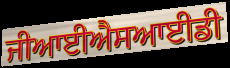
ਜੀਆਈਐਸਆਈਡੀ